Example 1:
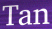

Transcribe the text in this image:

Tan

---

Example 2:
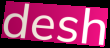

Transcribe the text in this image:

desh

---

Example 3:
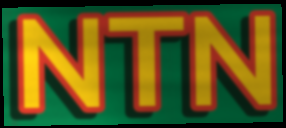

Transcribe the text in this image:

NTN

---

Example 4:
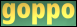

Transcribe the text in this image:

goppo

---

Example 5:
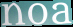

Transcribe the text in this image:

noa